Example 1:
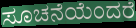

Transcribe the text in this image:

ಸೂಚನೆಯೆಂದರೆ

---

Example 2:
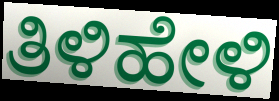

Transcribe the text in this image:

ತಿಳಿಹೇಳಿ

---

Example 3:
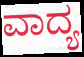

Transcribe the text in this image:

ವಾದ್ಯ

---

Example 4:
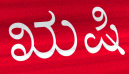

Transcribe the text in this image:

ಋಷಿ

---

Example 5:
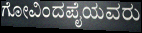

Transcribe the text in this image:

ಗೋವಿಂದಪೈಯವರು